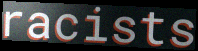
racists